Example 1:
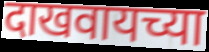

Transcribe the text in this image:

दाखवायच्या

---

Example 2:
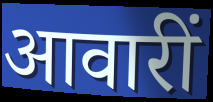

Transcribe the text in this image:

आवारीं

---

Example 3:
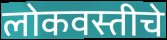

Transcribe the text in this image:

लोकवस्तीचे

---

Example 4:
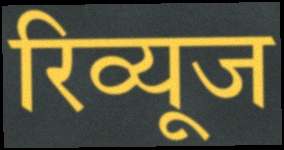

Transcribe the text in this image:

रिव्यूज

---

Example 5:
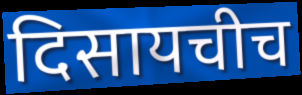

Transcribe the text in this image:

दिसायचीच